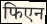
फिएन